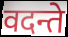
वदन्ते